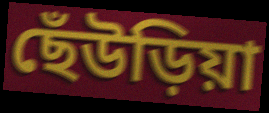
ছেঁউড়িয়া